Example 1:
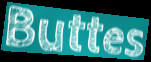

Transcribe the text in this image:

Buttes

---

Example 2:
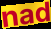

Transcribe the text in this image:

nad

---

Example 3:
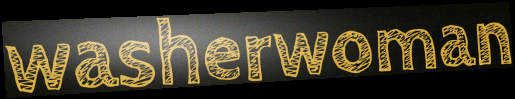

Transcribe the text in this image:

washerwoman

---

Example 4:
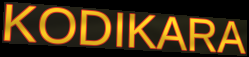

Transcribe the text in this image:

KODIKARA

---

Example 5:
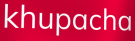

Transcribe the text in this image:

khupacha